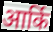
आर्कि